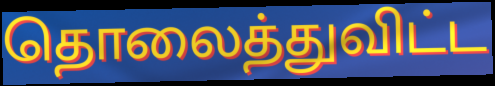
தொலைத்துவிட்ட